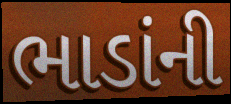
ભાડાંની